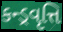
કન્ડ્રવૃત્તિ